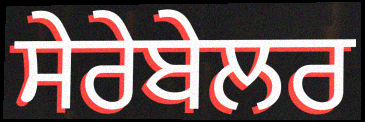
ਸੇਰੇਬੇਲਰ